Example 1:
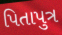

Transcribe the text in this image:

પિતાપુત્ર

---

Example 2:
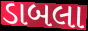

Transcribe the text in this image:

ડાબલા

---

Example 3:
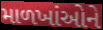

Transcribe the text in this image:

માળખાંઓને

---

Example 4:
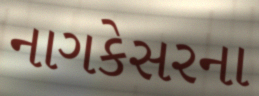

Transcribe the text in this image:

નાગકેસરના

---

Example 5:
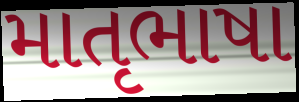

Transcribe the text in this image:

માતૃભાષા